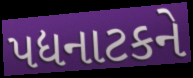
પદ્યનાટકને